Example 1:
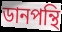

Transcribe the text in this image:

ডানপন্থি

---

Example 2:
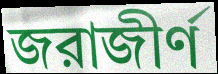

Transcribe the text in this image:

জরাজীর্ণ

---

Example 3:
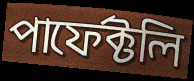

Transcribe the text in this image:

পার্ফেক্টলি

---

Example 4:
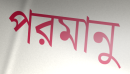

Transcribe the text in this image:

পরমানু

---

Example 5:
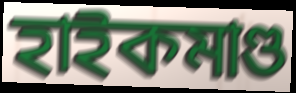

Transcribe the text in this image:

হাইকমাণ্ড